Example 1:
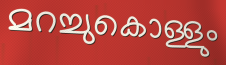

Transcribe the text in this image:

മറച്ചുകൊള്ളും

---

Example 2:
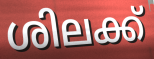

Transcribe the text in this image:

ശിലക്ക്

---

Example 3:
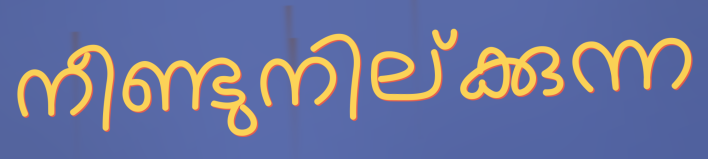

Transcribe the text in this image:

നീണ്ടുനില്ക്കുന്ന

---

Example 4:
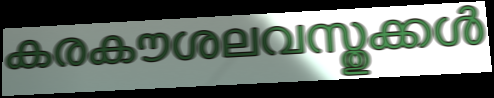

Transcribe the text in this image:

കരകൗശലവസ്തുക്കൾ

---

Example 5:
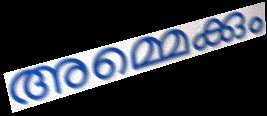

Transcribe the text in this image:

അമ്മെക്കും